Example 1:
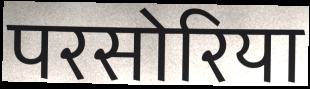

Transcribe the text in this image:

परसोरिया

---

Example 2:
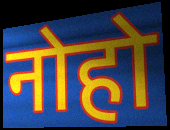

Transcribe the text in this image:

नोहो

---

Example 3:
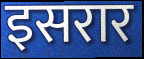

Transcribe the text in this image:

इसरार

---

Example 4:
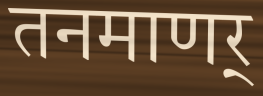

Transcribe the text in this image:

तनमाणर्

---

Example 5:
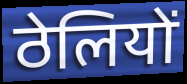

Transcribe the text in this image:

ठेलियों